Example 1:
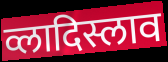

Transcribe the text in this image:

व्लादिस्लाव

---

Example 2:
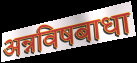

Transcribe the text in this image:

अन्नविषबाधा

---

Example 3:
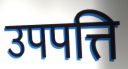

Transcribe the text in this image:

उपपत्ति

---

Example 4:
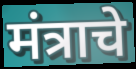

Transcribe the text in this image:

मंत्राचे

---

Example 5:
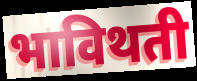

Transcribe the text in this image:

भाविथती